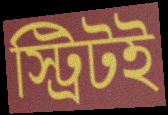
স্ট্রিটই